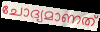
ചോദ്യമാണത്